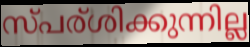
സ്പര്ശിക്കുന്നില്ല